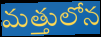
మత్తులోన